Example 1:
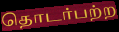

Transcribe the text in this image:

தொடர்பற்ற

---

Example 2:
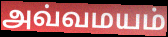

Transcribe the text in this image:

அவ்வமயம்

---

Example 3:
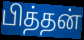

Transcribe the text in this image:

பித்தன்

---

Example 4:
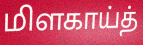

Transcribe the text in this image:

மிளகாய்த்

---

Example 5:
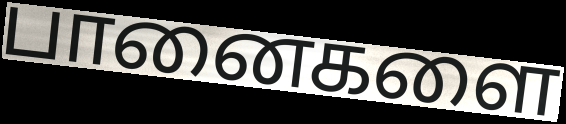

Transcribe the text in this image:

பானைகளை